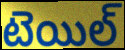
టెయిల్